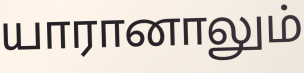
யாரானாலும்